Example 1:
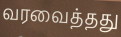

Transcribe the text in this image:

வரவைத்தது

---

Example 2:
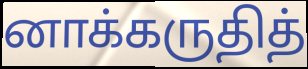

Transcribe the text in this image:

னாக்கருதித்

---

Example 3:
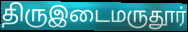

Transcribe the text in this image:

திருஇடைமருதூர்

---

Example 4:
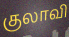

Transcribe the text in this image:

குலாவி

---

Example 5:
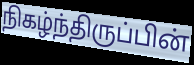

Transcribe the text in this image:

நிகழ்ந்திருப்பின்